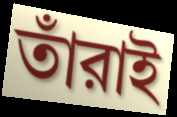
তাঁরাই